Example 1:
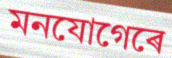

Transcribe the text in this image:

মনযোগেৰে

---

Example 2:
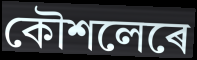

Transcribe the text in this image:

কৌশলেৰে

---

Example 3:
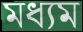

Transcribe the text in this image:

মধ্যম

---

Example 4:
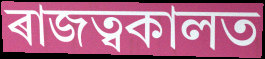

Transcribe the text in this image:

ৰাজত্বকালত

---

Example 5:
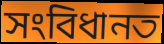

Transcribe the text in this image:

সংবিধানত